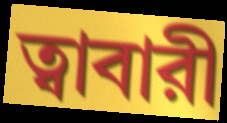
ত্বাবারী